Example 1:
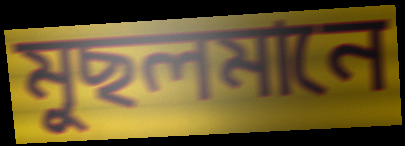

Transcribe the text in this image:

মুছলমানে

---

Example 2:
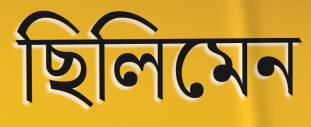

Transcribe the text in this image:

ছিলিমেন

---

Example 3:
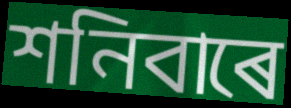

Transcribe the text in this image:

শনিবাৰে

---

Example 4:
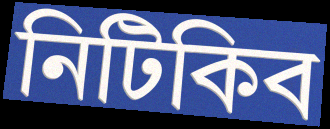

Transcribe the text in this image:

নিটিকিব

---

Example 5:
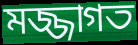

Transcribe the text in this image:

মজ্জাগত